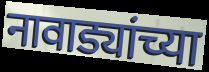
नावाड्यांच्या